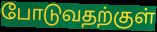
போடுவதற்குள்